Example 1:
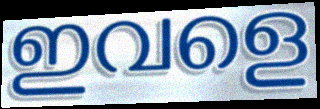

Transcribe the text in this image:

ഇവളെ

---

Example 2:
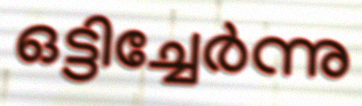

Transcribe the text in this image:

ഒട്ടിച്ചേർന്നു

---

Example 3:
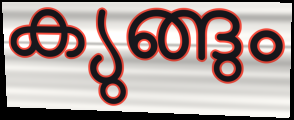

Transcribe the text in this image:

ക്യുങ്ങും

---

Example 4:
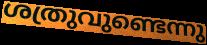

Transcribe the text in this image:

ശത്രുവുണ്ടെന്നു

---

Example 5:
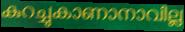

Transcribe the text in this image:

കുറച്ചുകാണാനാവില്ല